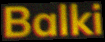
Balki